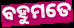
ବହୁମତେ